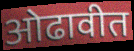
ओढावीत